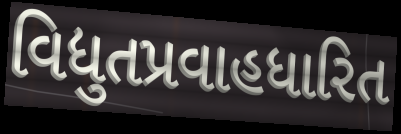
વિદ્યુતપ્રવાહધારિત